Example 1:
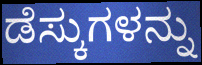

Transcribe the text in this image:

ಡೆಸ್ಕುಗಳನ್ನು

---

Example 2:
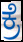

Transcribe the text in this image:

ಕ್ರೆ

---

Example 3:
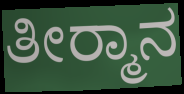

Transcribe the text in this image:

ತೀರ‍್ಮಾನ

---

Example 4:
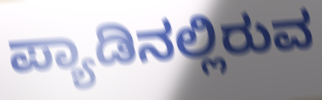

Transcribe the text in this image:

ಪ್ಯಾಡಿನಲ್ಲಿರುವ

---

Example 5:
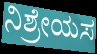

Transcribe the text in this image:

ನಿಶ್ರೇಯಸ